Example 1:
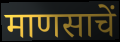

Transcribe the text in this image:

माणसाचें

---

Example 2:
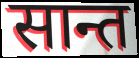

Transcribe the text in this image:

सान्त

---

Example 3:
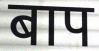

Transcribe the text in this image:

बाप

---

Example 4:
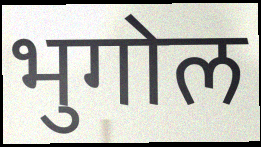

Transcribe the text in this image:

भुगोल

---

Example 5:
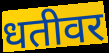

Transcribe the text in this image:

धतीवर